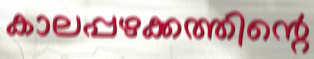
കാലപ്പഴക്കത്തിന്റെ